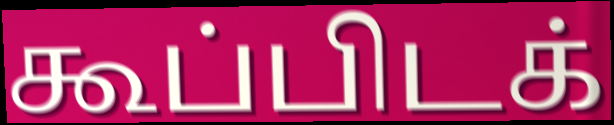
கூப்பிடக்